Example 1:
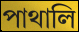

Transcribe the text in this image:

পাথালি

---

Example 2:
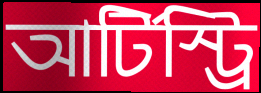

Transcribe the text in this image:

আর্টিস্ট্রি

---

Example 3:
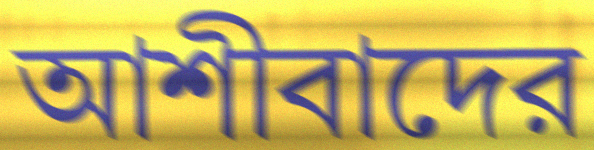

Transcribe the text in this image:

আশীবাদের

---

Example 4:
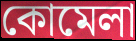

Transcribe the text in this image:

কোমেলা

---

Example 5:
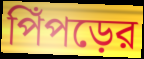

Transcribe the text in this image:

পিঁপড়ের